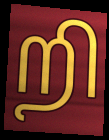
றி